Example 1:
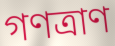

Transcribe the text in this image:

গণত্রাণ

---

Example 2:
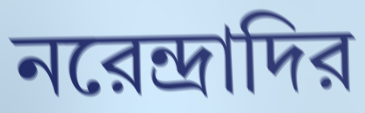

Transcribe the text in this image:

নরেন্দ্রাদির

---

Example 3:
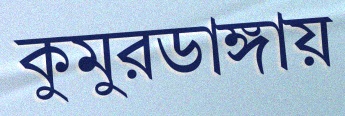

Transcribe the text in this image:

কুমুরডাঙ্গায়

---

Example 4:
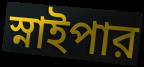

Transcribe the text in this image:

স্নাইপার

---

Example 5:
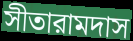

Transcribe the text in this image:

সীতারামদাস